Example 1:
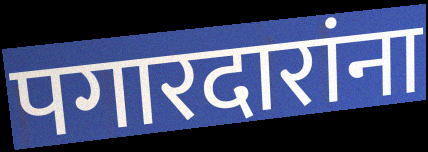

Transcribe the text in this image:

पगारदारांना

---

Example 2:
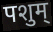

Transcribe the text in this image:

पशुम्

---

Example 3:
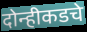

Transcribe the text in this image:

दोन्हीकडचे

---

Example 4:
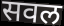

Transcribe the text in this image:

सवल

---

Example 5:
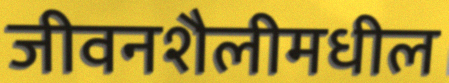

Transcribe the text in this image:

जीवनशैलीमधील